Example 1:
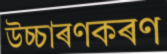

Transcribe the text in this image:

উচ্চাৰণকৰণ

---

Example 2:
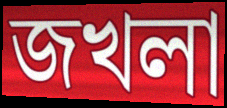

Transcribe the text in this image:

জখলা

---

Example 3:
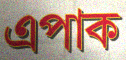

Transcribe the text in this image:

এপাক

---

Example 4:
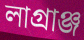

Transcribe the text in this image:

লাগ্ৰাঞ্জ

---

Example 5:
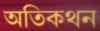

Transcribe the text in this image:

অতিকথন